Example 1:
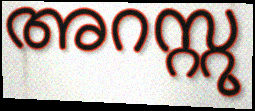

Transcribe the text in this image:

അറസ്റ്റു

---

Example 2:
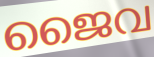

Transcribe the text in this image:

ജൈവ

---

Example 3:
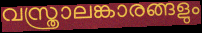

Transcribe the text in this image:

വസ്ത്രാലങ്കാരങ്ങളും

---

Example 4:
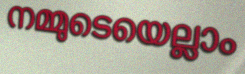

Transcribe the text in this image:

നമ്മുടെയെല്ലാം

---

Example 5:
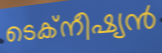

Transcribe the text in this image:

ടെക്നീഷ്യൻ